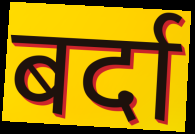
बर्दा